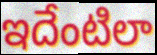
ఇదేంటిలా